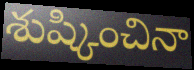
శుష్కించినా